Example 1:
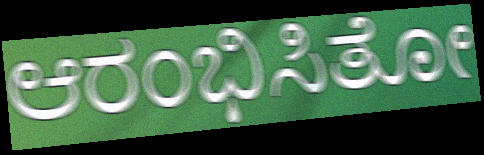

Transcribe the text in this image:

ಆರಂಭಿಸಿತೋ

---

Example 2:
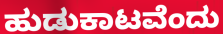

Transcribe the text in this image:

ಹುಡುಕಾಟವೆಂದು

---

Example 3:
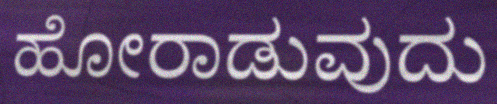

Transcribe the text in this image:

ಹೋರಾಡುವುದು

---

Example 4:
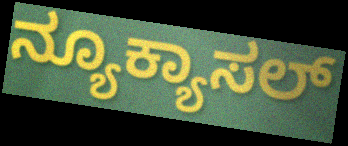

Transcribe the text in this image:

ನ್ಯೂಕ್ಯಾಸಲ್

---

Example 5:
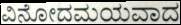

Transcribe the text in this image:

ವಿನೋದಮಯವಾದ